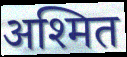
अश्मित